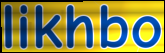
likhbo